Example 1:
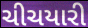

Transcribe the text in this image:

ચીચયારી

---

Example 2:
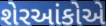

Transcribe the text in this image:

શેરઆંકોએ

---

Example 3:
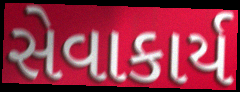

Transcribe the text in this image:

સેવાકાર્ય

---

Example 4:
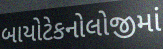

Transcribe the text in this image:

બાયોટેકનોલોજીમાં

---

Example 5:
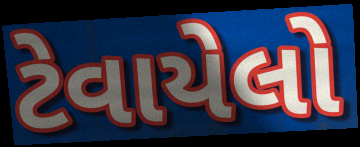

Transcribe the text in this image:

ટેવાયેલો